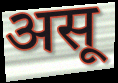
असू